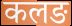
कलङ